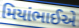
મિયાંભાઈએ